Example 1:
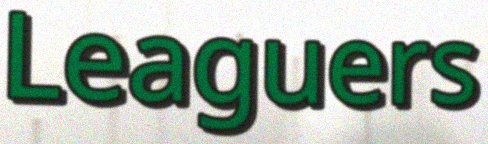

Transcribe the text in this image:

Leaguers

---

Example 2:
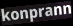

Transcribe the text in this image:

konprann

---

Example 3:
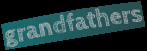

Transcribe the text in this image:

grandfathers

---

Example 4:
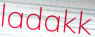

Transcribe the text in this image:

ladakk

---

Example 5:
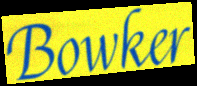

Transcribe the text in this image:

Bowker